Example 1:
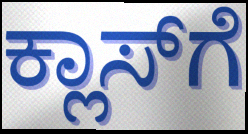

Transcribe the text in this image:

ಕ್ಲಾಸ್‌ಗೆ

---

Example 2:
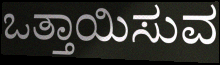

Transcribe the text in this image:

ಒತ್ತಾಯಿಸುವ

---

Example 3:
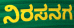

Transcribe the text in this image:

ನಿರಸನಗ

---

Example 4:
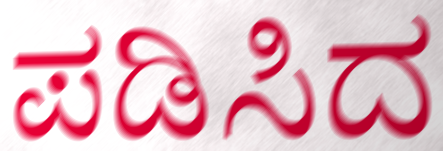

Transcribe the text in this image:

ಪಡಿಸಿದ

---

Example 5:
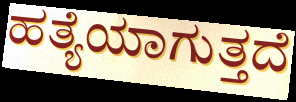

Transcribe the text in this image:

ಹತ್ಯೆಯಾಗುತ್ತದೆ